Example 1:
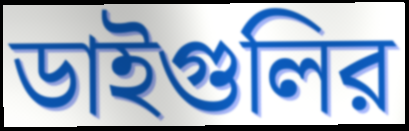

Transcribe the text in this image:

ডাইগুলির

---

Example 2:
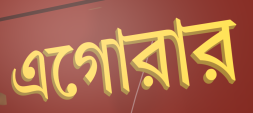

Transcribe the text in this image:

এগোরার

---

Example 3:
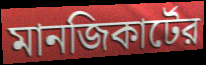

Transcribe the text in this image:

মানজিকার্টের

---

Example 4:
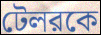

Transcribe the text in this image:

টেলরকে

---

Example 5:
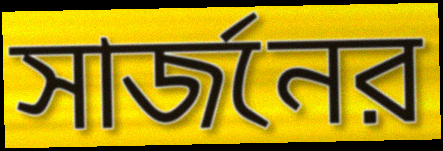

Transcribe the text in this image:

সার্জনের